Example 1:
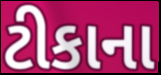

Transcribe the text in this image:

ટીકાના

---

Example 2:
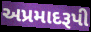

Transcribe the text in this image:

અપ્રમાદરૂપી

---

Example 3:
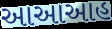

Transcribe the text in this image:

આઆઆહ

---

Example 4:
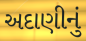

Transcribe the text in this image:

અદાણીનું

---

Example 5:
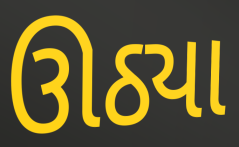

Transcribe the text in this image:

ઊઠ્યા